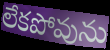
లేకపోవును